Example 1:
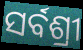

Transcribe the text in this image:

ସର୍ବଶ୍ରୀ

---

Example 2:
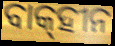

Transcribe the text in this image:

ବାକ୍‌ହୀନ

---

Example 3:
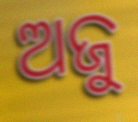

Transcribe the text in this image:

ଅଜୁ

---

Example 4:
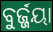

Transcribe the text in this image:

ବୁର୍ଜ୍ଜୟା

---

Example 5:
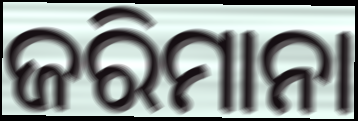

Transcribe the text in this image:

ଜରିମାନା